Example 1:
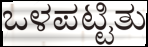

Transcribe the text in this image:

ಒಳಪಟ್ಟಿತು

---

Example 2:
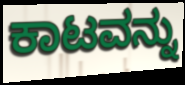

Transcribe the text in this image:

ಕಾಟವನ್ನು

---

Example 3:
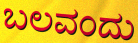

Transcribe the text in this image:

ಬಲವಂದು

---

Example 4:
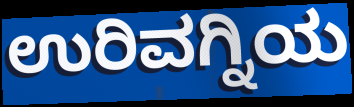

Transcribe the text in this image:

ಉರಿವಗ್ನಿಯ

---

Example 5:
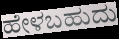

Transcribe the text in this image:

ಹೇಳಬಹುದು